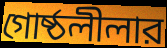
গোষ্ঠলীলার